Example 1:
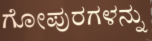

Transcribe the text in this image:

ಗೋಪುರಗಳನ್ನು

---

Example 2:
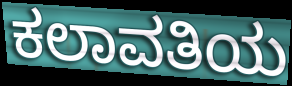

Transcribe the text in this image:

ಕಲಾವತಿಯ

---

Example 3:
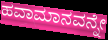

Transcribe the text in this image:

ಹವಾಮಾನವನ್ನೇ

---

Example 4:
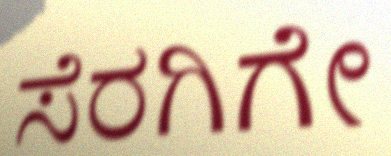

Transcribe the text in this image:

ಸೆರಗಿಗೇ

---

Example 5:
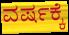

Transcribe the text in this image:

ವರ್ಷಕ್ಕೆ